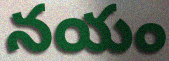
నయం